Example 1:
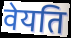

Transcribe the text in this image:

वेयति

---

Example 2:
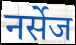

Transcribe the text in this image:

नर्सेज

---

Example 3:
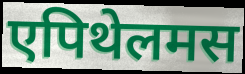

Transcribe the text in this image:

एपिथेलमस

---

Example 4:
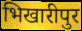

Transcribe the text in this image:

भिखारीपुर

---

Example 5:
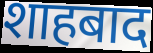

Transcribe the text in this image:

शाहबाद